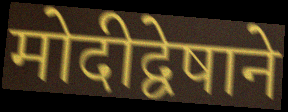
मोदीद्वेषाने